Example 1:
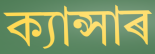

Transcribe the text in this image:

ক্যান্সাৰ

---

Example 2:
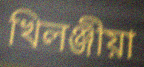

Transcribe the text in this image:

খিলঞ্জীয়া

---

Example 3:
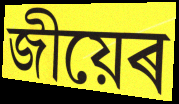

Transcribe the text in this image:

জীয়েৰ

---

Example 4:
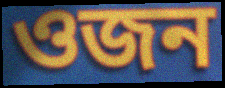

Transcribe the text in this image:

ওজন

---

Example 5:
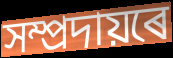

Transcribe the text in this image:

সম্প্ৰদায়ৰে